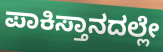
ಪಾಕಿಸ್ತಾನದಲ್ಲೇ